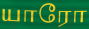
யாரோ